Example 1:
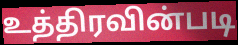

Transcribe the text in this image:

உத்திரவின்படி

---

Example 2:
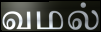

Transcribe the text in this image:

வமல்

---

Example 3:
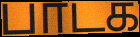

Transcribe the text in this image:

பாடக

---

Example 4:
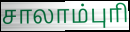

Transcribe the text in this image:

சாலாம்புரி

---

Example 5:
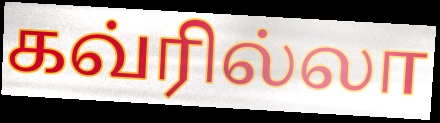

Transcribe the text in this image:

கவ்ரில்லா